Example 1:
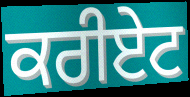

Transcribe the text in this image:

ਕਰੀਏਟ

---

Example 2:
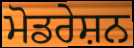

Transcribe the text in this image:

ਮੋਡਰੇਸ਼ਨ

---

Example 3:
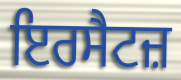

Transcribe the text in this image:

ਇਰਸੈਟਜ਼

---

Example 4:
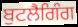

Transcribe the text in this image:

ਬੁਟਲੈਗਿੰਗ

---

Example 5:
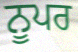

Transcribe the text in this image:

ਨੂਪਰ